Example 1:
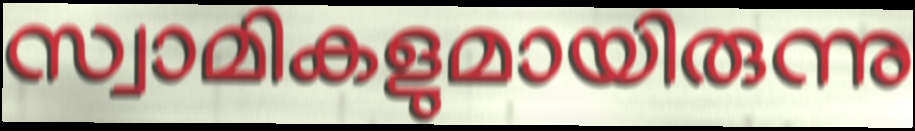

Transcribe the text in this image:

സ്വാമികളുമായിരുന്നു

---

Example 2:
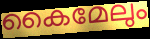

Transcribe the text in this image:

കൈമേലും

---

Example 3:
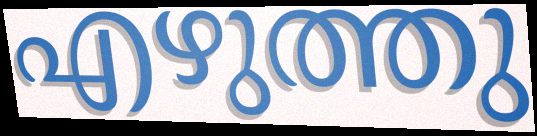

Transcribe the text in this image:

എഴുത്തു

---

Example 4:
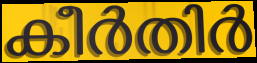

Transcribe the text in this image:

കീർതിർ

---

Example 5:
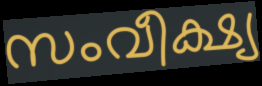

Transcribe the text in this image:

സംവീക്ഷ്യ